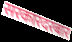
सरकारदरबार